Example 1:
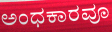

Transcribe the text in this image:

ಅಂಧಕಾರವೂ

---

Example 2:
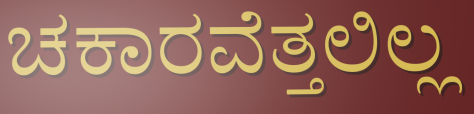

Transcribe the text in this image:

ಚಕಾರವೆತ್ತಲಿಲ್ಲ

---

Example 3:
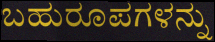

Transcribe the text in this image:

ಬಹುರೂಪಗಳನ್ನು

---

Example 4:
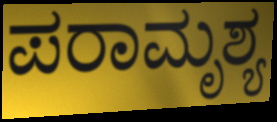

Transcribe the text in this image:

ಪರಾಮೃಶ್ಯ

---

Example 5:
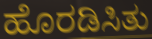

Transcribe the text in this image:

ಹೊರಡಿಸಿತು